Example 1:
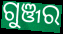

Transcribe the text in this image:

ଗୁଞ୍ଜର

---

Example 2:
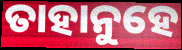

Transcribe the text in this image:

ତାହାନୁହେ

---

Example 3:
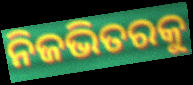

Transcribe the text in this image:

ନିଜଭିତରକୁ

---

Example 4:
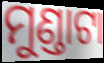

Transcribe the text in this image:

ମୁଣ୍ଡାଟା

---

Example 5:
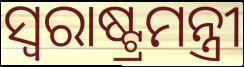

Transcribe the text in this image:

ସ୍ବରାଷ୍ଟ୍ରମନ୍ତ୍ରୀ